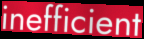
inefficient